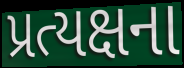
પ્રત્યક્ષના